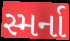
સ્મર્ના